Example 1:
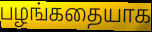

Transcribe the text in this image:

பழங்கதையாக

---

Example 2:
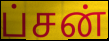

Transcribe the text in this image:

ப்சன்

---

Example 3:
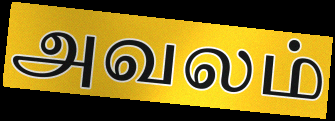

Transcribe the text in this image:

அவலம்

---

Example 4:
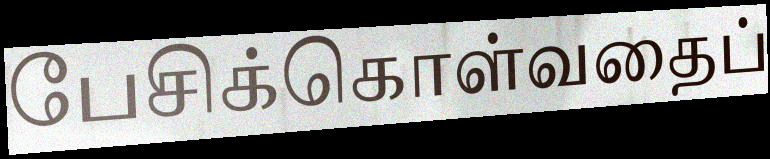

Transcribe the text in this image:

பேசிக்கொள்வதைப்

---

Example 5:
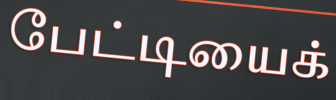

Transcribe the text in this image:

பேட்டியைக்